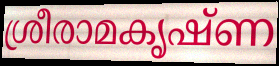
ശ്രീരാമകൃഷ്ണ